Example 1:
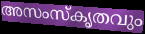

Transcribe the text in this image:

അസംസ്കൃതവും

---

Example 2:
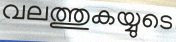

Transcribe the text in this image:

വലത്തുകയ്യുടെ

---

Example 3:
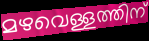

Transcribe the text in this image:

മഴവെള്ളത്തിന്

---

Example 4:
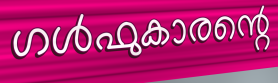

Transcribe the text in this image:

ഗൾഫുകാരന്റെ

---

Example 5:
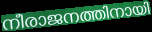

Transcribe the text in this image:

നീരാജനത്തിനായി